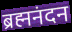
ब्रह्मनंदन